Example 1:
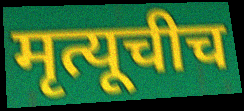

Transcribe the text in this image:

मृत्यूचीच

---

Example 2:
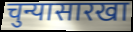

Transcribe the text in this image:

चुन्यासारखा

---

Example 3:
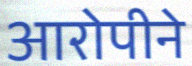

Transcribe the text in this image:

आरोपीने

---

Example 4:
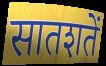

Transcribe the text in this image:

सातशतें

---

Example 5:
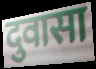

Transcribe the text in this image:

दुवासा